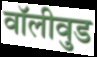
वॉलीवुड